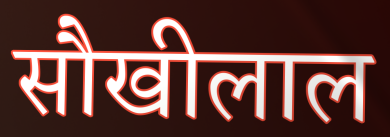
सौखीलाल